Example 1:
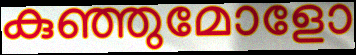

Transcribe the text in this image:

കുഞ്ഞുമോളോ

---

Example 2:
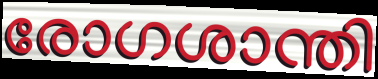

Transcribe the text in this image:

രോഗശാന്തി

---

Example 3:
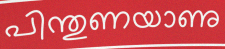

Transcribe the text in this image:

പിന്തുണയാണു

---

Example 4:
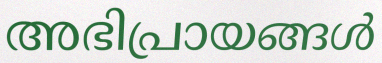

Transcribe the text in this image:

അഭിപ്രായങ്ങൾ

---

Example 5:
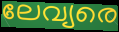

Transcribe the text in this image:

ലേവ്യരെ